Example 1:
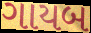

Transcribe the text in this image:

ગાયબ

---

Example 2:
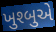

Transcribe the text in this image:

ખુશ્બુએ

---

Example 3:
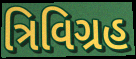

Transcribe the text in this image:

ત્રિવિગ્રહ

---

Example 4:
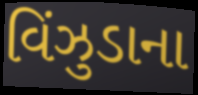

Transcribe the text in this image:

વિંઝુડાના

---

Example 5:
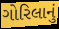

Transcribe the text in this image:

ગોરિલાનું